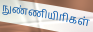
நுண்ணியிரிகள்